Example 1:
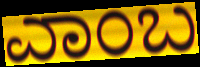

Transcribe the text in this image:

ಎಾಂಬ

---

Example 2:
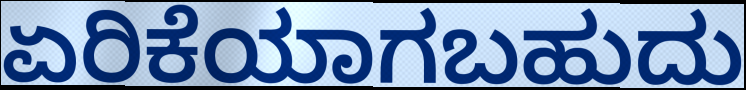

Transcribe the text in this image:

ಏರಿಕೆಯಾಗಬಹುದು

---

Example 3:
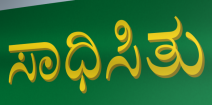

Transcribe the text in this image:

ಸಾಧಿಸಿತು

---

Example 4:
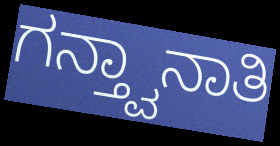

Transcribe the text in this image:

ಗನ್ತ್ವಾನಾತಿ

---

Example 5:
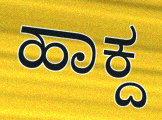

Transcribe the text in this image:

ಹಾಕ್ದ